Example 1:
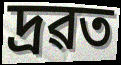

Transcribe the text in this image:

দ্ৰৱত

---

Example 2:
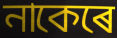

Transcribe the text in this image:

নাকেৰে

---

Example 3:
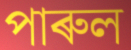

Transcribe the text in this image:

পাৰুল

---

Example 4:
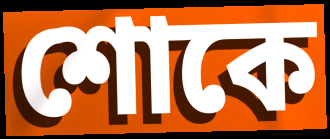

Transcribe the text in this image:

শোকে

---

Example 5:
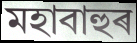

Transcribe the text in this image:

মহাবাহুৰ